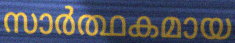
സാർത്ഥകമായ